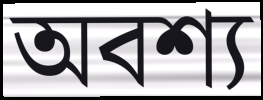
অবশ্য